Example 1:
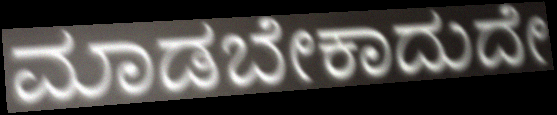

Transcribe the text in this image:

ಮಾಡಬೇಕಾದುದೇ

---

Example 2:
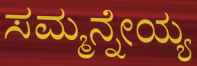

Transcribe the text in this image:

ಸಮ್ಮನ್ನೇಯ್ಯ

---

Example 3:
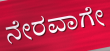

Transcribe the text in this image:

ನೇರವಾಗೇ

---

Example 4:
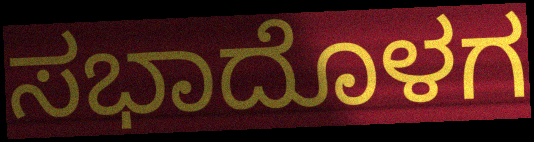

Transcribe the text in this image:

ಸಭಾದೊಳಗ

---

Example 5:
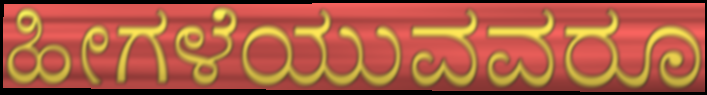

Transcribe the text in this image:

ಹೀಗಳೆಯುವವರೂ